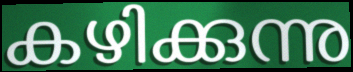
കഴിക്കുന്നു